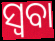
ସ୍ୱବା